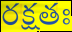
రక్షతః